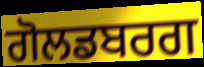
ਗੋਲਡਬਰਗ